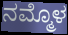
ನಮ್ಮೊಳ